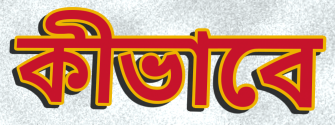
কীভাবে